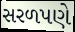
સરળપણે